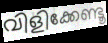
വിളിക്കേണ്ടൂ